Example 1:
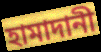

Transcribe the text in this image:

হামাদানী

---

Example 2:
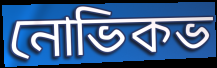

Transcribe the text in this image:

নোভিকভ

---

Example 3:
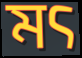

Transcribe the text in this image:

মৎ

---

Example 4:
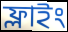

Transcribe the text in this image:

ফ্লাইং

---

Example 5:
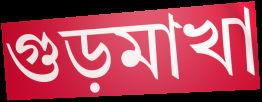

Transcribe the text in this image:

গুড়মাখা